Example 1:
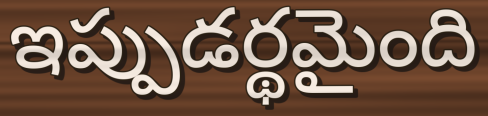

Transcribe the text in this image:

ఇప్పుడర్థమైంది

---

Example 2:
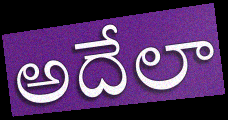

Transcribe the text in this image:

అదేలా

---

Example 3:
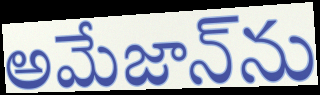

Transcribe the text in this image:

అమేజాన్‌ను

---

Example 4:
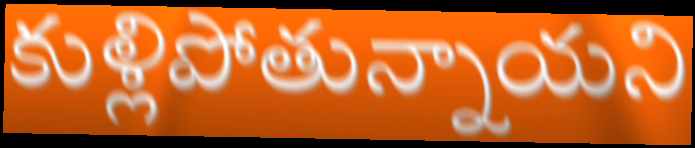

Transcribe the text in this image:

కుళ్లిపోతున్నాయని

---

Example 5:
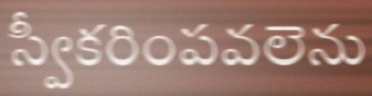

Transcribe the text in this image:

స్వీకరింపవలెను